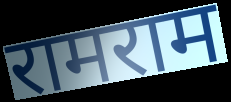
रामराम